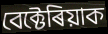
বেক্টেৰিয়াক